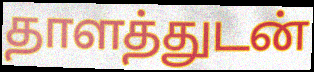
தாளத்துடன்